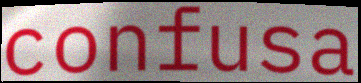
confusa